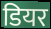
डियर